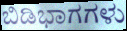
ಬಿಡಿಭಾಗಗಳು